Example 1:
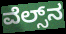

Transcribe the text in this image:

ವೆಲ್ಸ್‌ನ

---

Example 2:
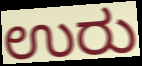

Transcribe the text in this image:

ಉರು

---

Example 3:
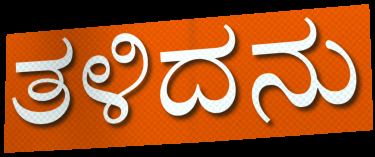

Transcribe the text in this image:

ತಳಿದನು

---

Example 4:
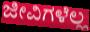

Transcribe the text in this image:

ಜೀವಿಗಳೆಲ್ಲ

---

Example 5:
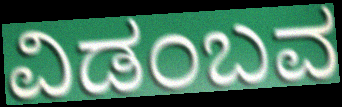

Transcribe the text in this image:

ವಿಡಂಬವ